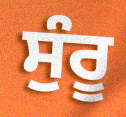
ਸੁੰਰੂ